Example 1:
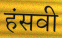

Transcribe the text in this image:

हंसवी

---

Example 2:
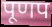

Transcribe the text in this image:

पूणप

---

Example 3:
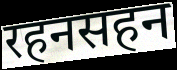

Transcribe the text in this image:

रहनसहन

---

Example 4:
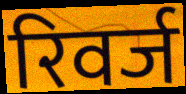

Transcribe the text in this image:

रिवर्ज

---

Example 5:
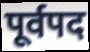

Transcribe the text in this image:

पूर्वपद